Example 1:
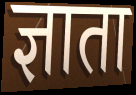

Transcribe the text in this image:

ज्ञाता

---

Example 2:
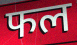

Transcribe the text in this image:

फल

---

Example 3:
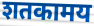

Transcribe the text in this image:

शतकामय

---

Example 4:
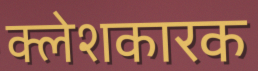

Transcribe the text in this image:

क्लेशकारक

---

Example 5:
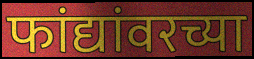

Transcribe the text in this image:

फांद्यांवरच्या